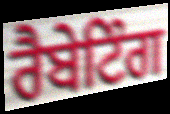
ਰੈਬੇਟਿੰਗ